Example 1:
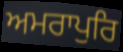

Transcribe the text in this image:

ਅਮਰਾਪੁਰਿ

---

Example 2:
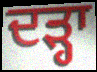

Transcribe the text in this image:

ਦੜ੍ਹਾ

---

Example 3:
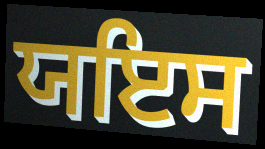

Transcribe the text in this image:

ਯਇਸ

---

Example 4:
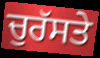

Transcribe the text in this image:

ਚੁਰੱਸਤੇ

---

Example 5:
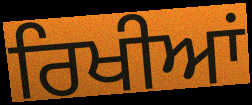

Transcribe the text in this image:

ਰਿਖੀਆਂ